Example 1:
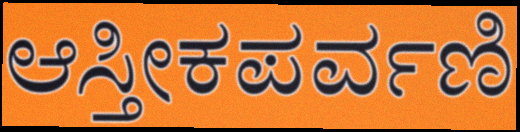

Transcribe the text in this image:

ಆಸ್ತೀಕಪರ್ವಣಿ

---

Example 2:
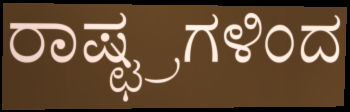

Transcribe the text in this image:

ರಾಷ್ಟ್ರಗಳಿಂದ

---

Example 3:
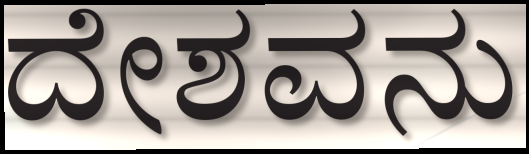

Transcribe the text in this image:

ದೇಶವನು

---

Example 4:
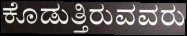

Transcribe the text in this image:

ಕೊಡುತ್ತಿರುವವರು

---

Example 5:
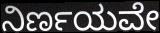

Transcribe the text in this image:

ನಿರ್ಣಯವೇ